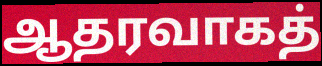
ஆதரவாகத்